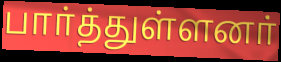
பார்த்துள்ளனர்